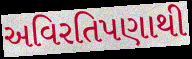
અવિરતિપણાથી